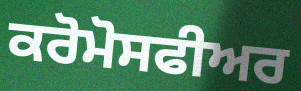
ਕਰੋਮੋਸਫੀਅਰ